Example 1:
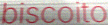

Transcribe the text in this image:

biscoito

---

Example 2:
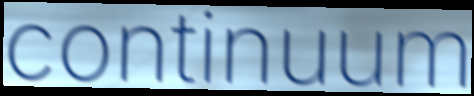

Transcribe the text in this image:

continuum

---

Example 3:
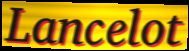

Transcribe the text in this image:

Lancelot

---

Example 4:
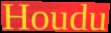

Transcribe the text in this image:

Houdu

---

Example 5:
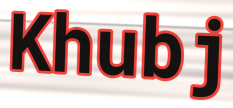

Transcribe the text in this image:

Khubj